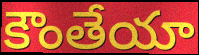
కౌంతేయా